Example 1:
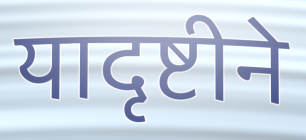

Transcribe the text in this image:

यादृष्टीने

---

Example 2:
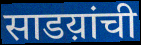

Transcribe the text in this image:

साडय़ांची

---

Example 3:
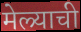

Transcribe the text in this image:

मेल्याची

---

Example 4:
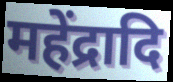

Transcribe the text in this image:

महेंद्रादि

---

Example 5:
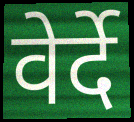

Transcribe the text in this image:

वेर्दे